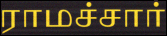
ராமச்சார்